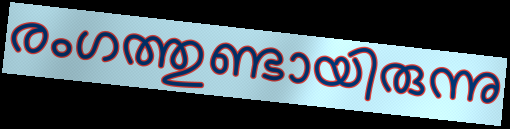
രംഗത്തുണ്ടായിരുന്നു